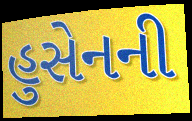
હુસેનની